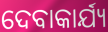
ଦେବାକାର୍ଯ୍ୟ